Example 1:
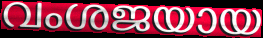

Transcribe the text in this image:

വംശജയായ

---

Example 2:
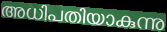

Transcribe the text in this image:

അധിപതിയാകുന്നു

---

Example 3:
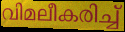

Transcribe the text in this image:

വിമലീകരിച്ച്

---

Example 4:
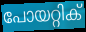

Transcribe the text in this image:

പോയറ്റിക്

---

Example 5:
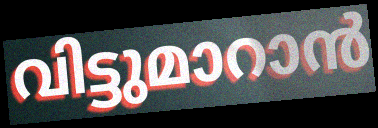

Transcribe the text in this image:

വിട്ടുമാറാൻ